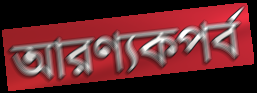
আরণ্যকপর্ব